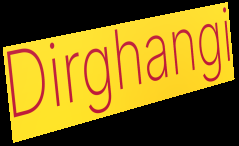
Dirghangi